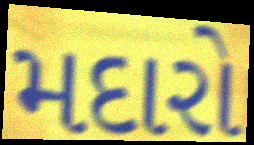
મદારો